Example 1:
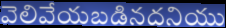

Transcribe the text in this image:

వెలివేయబడినదనియు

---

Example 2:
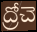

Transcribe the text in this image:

ద్రోచె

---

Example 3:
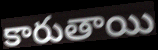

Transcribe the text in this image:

కారుతాయి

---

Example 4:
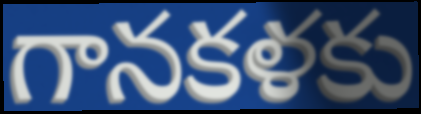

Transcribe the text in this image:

గానకళకు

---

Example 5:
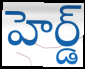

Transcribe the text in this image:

హెర్డ్